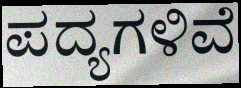
ಪದ್ಯಗಳಿವೆ